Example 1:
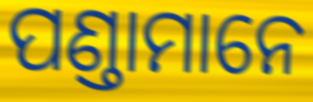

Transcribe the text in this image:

ପଣ୍ଡାମାନେ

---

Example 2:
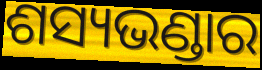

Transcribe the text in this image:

ଶସ୍ୟଭଣ୍ଡାର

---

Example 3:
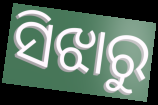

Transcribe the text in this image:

ସିଝାରୁ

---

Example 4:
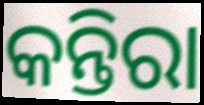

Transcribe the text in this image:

କନ୍ତିରା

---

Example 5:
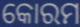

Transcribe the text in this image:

କୋରମ